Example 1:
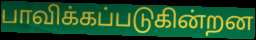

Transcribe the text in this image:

பாவிக்கப்படுகின்றன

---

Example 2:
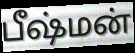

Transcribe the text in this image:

பீஷ்மன்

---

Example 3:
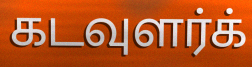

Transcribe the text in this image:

கடவுளர்க்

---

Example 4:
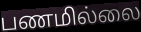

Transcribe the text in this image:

பணமில்லை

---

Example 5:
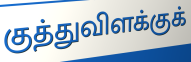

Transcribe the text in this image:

குத்துவிளக்குக்